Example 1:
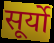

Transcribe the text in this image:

सूर्यो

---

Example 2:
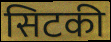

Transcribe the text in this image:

सिटकी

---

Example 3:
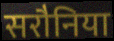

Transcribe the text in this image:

सरौनिया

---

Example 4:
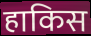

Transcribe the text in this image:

हाकिस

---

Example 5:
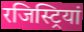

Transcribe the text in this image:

रजिस्ट्रियां